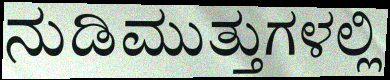
ನುಡಿಮುತ್ತುಗಳಲ್ಲಿ